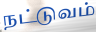
நட்டுவம்